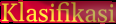
Klasifikasi